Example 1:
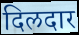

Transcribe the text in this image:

दिलदार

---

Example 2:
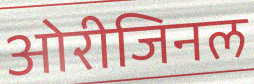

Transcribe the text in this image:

ओरीजिनल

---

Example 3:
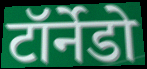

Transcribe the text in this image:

टॉर्नेडो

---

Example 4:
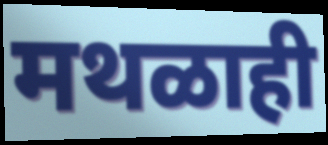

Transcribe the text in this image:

मथळाही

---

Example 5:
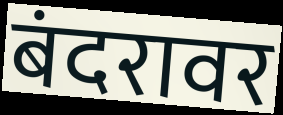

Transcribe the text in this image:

बंदरावर